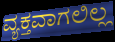
ವ್ಯಕ್ತವಾಗಲಿಲ್ಲ